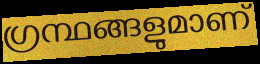
ഗ്രന്ഥങ്ങളുമാണ്